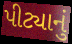
પીટ્યાનું